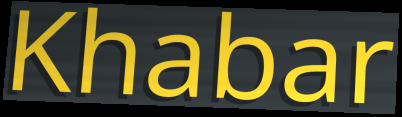
Khabar